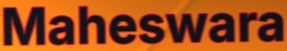
Maheswara